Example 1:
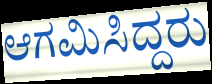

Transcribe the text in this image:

ಆಗಮಿಸಿದ್ದರು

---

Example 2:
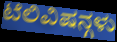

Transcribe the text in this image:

ಟೆಲಿವಿಷನ್ಗಳು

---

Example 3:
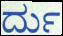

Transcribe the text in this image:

ರ್ದು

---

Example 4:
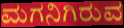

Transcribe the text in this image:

ಮಗನಿಗಿರುವ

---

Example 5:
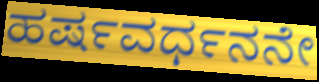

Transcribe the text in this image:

ಹರ್ಷವರ್ಧನನೇ